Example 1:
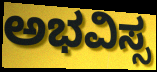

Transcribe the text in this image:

ಅಭವಿಸ್ಸ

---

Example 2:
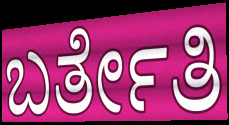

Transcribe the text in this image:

ಬರ್ತೇತಿ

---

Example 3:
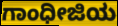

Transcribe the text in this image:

ಗಾಂಧೀಜಿಯ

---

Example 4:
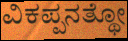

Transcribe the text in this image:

ವಿಕಪ್ಪನತ್ಥೋ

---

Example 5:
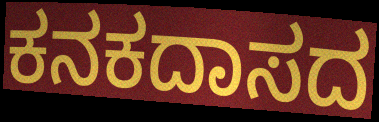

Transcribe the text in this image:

ಕನಕದಾಸದ